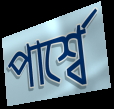
পার্শ্বে